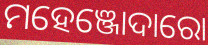
ମହେଞ୍ଜୋଦାରୋ